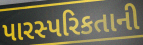
પારસ્પરિકતાની